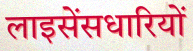
लाइसेंसधारियों